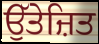
ਉੱਤੇਜ਼ਿਤ